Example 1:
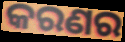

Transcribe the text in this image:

କରଣର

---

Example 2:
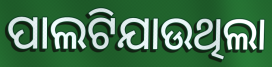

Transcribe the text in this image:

ପାଲଟିଯାଉଥିଲା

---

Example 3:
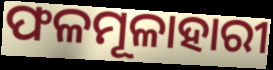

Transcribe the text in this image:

ଫଳମୂଳାହାରୀ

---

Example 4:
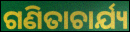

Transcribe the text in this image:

ଗଣିତାଚାର୍ଯ୍ୟ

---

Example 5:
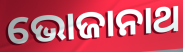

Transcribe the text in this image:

ଭୋଜାନାଥ